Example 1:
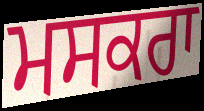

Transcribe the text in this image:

ਮਸਕਰਾ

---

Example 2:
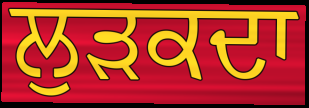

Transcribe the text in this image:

ਲੁੜਕਦਾ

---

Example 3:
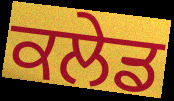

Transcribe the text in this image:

ਕਲੇਡ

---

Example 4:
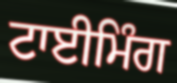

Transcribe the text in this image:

ਟਾਈਮਿੰਗ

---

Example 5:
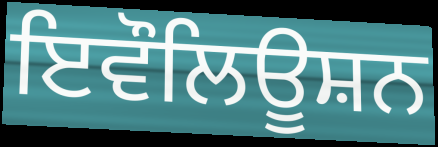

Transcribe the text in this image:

ਇਵੌਲਿਊਸ਼ਨ